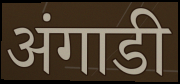
अंगाडी